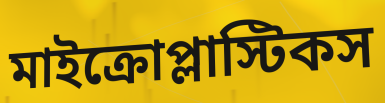
মাইক্রোপ্লাস্টিকস